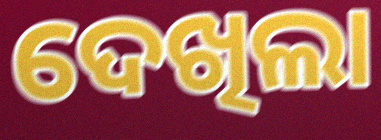
ଦେଖିଲା